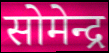
सोमेन्द्र